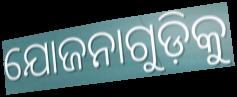
ଯୋଜନାଗୁଡ଼ିକୁ